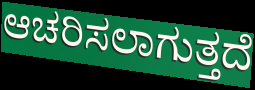
ಆಚರಿಸಲಾಗುತ್ತದೆ